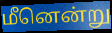
மீனென்று